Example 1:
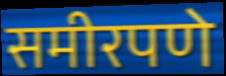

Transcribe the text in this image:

समीरपणे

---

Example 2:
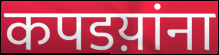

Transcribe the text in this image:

कपडय़ांना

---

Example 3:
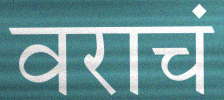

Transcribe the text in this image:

वराचं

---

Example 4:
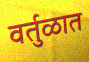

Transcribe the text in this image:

वर्तुळात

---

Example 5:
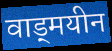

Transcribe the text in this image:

वाड्‌मयीन